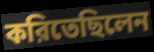
করিতেছিলেন